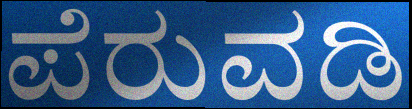
ಪೆರುವಡಿ